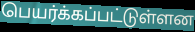
பெயர்க்கப்பட்டுள்ளன